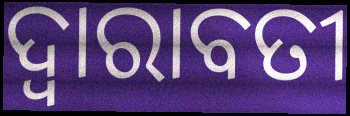
ଦ୍ଵାରାବତୀ